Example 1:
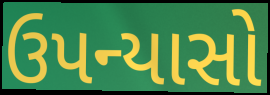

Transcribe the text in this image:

ઉપન્યાસો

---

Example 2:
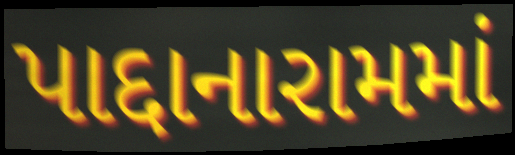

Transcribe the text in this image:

પાદ્દાનારામમાં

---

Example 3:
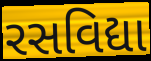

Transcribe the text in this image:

રસવિદ્યા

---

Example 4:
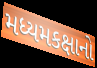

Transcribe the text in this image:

મધ્યમકક્ષાનો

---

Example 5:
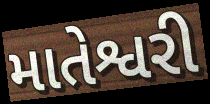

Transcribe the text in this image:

માતેશ્વરી